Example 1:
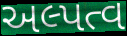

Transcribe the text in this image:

અલ્પત્વ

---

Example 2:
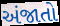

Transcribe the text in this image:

અંજાતો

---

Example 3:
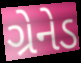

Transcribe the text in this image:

ગ્રેનેડ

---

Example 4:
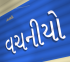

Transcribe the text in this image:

વચનીયો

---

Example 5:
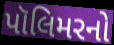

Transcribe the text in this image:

પૉલિમરનો